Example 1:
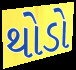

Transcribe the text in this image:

થોડો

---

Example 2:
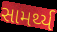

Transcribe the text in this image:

સામર્થ્ય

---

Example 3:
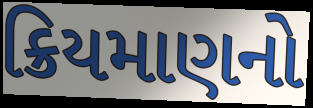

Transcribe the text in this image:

ક્રિયમાણનો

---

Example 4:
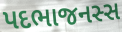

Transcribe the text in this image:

પદભાજનસ્સ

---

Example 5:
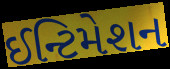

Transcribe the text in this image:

ઈન્ટિમેશન